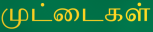
முட்டைகள்